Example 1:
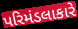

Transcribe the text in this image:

પરિમંડલાકારે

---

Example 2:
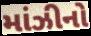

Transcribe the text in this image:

માંઝીનો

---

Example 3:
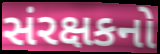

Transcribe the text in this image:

સંરક્ષકનો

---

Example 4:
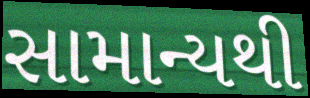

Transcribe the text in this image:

સામાન્યથી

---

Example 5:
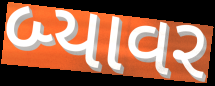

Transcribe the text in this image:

બ્યાવર